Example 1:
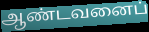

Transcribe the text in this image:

ஆண்டவனைப்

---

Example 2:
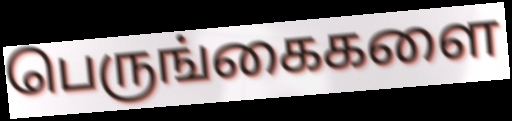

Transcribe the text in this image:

பெருங்கைகளை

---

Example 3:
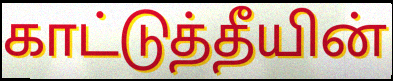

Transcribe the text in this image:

காட்டுத்தீயின்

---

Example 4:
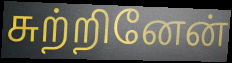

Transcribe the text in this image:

சுற்றினேன்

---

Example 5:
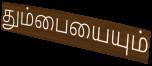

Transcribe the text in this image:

தும்பையையும்